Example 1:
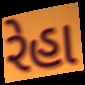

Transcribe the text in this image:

રેહા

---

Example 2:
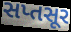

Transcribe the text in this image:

સપ્તસૂર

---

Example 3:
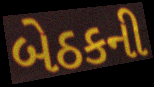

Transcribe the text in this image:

બેઠકની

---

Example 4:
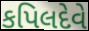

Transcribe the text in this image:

કપિલદેવે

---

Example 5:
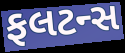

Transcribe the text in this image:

ફલટન્સ